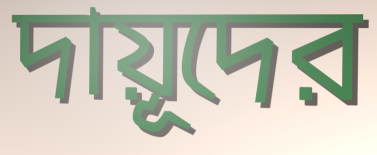
দায়ূদের